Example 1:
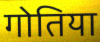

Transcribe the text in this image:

गोतिया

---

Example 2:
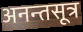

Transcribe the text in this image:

अनन्तसूत्र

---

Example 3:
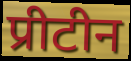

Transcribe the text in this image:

प्रीटीन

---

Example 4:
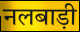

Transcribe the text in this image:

नलबाड़ी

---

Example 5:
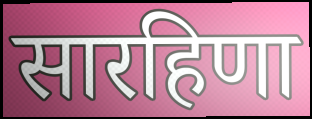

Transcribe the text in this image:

सारहिणा